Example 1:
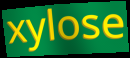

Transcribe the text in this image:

xylose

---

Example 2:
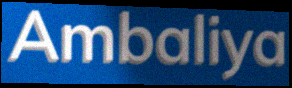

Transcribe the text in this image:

Ambaliya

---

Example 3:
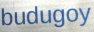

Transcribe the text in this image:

budugoy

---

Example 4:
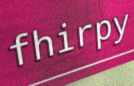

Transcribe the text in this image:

fhirpy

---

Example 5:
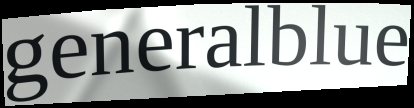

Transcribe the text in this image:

generalblue